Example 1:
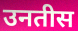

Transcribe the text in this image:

उनतीस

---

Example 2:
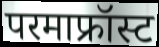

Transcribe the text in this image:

परमाफ्रॉस्ट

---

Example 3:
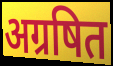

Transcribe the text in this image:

अग्रषित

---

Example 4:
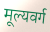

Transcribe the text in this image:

मूल्यवर्ग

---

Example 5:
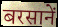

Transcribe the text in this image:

बरसानें